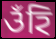
ওঁহি